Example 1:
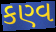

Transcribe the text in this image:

કણ્વ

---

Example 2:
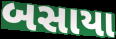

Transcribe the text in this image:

બસાયા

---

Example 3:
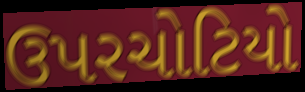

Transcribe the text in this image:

ઉપરચોટિયો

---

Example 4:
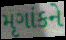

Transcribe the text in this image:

મૃગાંકને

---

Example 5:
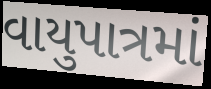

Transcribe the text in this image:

વાયુપાત્રમાં